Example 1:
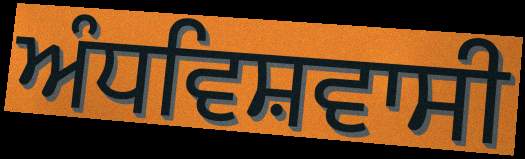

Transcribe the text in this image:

ਅੰਧਵਿਸ਼ਵਾਸੀ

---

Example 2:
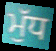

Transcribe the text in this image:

ਮੁੱਧ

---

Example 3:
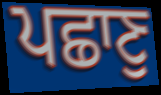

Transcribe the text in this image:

ਪਛਾਣੁ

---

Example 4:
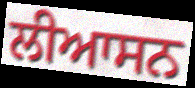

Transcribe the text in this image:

ਲੀਆਸਨ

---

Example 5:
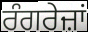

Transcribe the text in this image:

ਰੰਗਰੇਜ਼ਾਂ